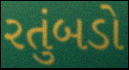
રતુંબડો